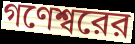
গণেশ্বরের